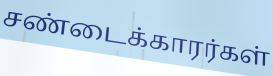
சண்டைக்காரர்கள்